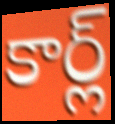
కార్ల్